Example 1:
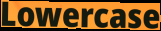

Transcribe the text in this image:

Lowercase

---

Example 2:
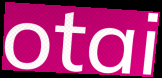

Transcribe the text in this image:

otai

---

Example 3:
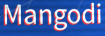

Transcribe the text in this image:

Mangodi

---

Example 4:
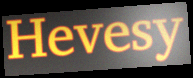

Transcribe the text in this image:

Hevesy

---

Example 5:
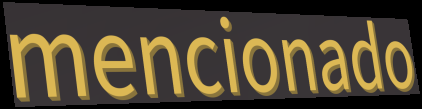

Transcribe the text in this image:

mencionado